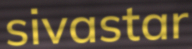
sivastar